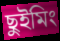
ছুইমিং